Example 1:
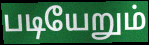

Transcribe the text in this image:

படியேறும்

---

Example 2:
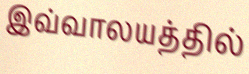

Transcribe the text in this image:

இவ்வாலயத்தில்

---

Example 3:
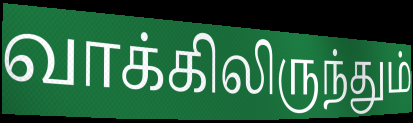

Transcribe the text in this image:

வாக்கிலிருந்தும்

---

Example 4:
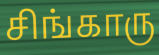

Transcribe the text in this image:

சிங்காரு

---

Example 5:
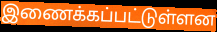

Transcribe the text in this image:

இணைக்கப்பட்டுள்ளன